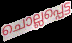
ചൊല്ലപ്പെട്ട